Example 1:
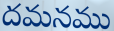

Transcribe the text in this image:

దమనము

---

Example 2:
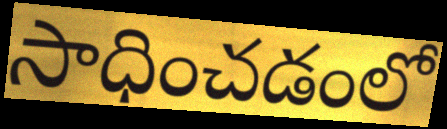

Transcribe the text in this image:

సాధించడంలో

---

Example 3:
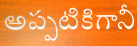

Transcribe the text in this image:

అప్పటికిగానీ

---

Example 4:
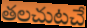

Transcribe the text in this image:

తలచుటచే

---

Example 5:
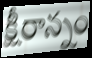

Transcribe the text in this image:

క్షీరాన్నం